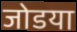
जोडया